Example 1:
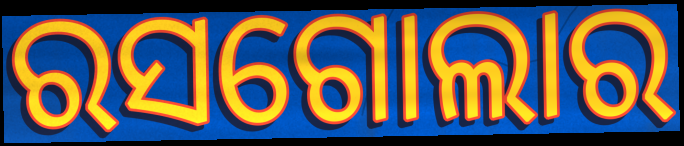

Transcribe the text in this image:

ରସଗୋଲାର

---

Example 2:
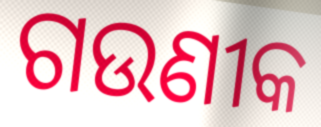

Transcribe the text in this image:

ଗଉଣୀକ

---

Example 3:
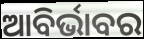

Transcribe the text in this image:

ଆବିର୍ଭାବର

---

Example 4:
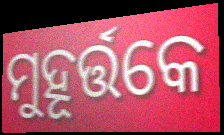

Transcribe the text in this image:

ମୁହୂର୍ତ୍ତକେ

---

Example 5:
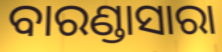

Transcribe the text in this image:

ବାରଣ୍ଡାସାରା